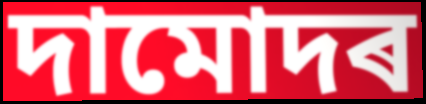
দামোদৰ